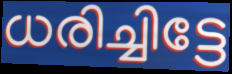
ധരിച്ചിട്ടേ